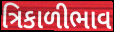
ત્રિકાળીભાવ